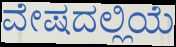
ವೇಷದಲ್ಲಿಯೆ